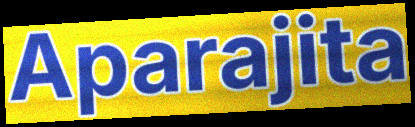
Aparajita